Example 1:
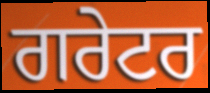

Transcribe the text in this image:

ਗਰੇਟਰ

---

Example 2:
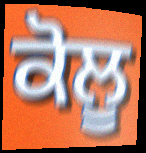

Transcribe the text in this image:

ਕੋਲੂ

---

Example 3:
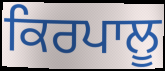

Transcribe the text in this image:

ਕਿਰਪਾਲੂ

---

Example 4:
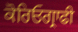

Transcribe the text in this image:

ਕੋਰਿਓਗ੍ਰਾਫੀ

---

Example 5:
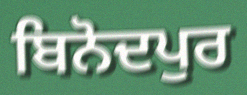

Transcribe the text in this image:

ਬਿਨੋਦਪੁਰ